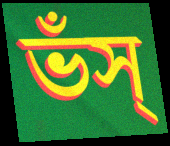
ভঁস্